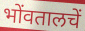
भोंवतालचें